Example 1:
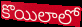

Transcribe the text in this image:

కొయిలాలో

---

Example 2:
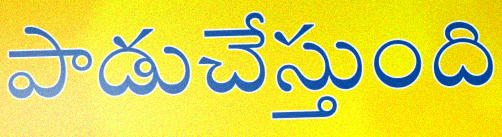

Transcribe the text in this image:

పాడుచేస్తుంది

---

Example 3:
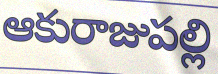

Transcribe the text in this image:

ఆకురాజుపల్లి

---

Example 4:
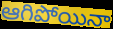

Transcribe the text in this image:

ఆగిపోయినా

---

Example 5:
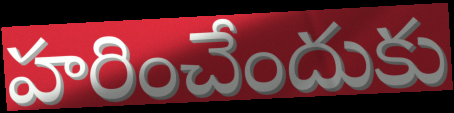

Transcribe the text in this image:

హరించేందుకు